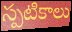
స్పటికాలు